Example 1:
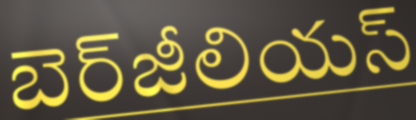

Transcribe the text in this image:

బెర్‌జీలియస్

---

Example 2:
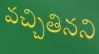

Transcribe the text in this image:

వచ్చితినని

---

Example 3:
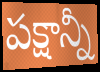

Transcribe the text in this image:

పక్షాన్నీ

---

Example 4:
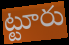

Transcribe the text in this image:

ట్టూరు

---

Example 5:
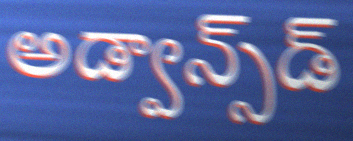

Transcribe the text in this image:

అడ్వాన్స్‌డ్